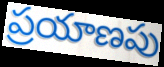
ప్రయాణపు